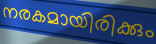
നരകമായിരിക്കും